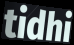
tidhi